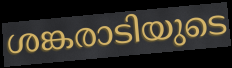
ശങ്കരാടിയുടെ